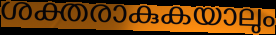
ശക്തരാകുകയാലും